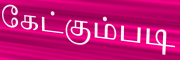
கேட்கும்படி